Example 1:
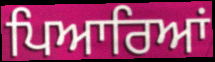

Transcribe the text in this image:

ਪਿਆਰਿਆਂ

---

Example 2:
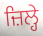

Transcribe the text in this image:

ਜ਼ਿਲ੍ਹੇ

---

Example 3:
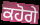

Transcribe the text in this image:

ਕਹੋਗੇ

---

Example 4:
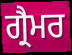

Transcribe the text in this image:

ਗ੍ਰੈਮਰ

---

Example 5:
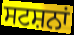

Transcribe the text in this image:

ਸਟਸ਼ਨਾਂ